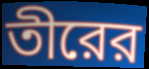
তীরের